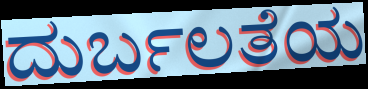
ದುರ್ಬಲತೆಯ